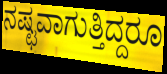
ನಷ್ಟವಾಗುತ್ತಿದ್ದರೂ